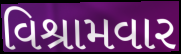
વિશ્રામવાર